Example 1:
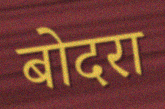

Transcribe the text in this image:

बोदरा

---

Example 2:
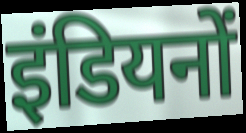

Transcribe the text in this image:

इंडियनों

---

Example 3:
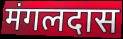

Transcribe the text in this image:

मंगलदास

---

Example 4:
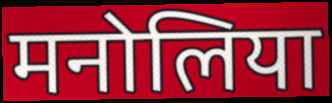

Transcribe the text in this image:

मनोलिया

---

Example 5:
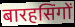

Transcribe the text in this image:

बारहसिंगों